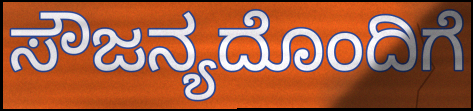
ಸೌಜನ್ಯದೊಂದಿಗೆ